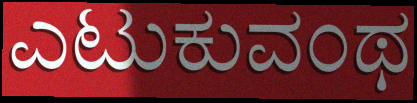
ಎಟುಕುವಂಥ